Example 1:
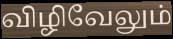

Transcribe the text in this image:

விழிவேலும்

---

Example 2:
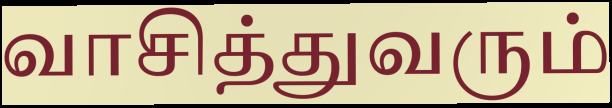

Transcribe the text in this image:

வாசித்துவரும்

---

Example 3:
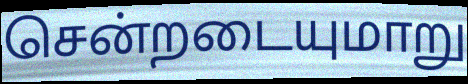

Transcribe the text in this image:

சென்றடையுமாறு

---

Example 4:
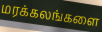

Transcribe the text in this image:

மரக்கலங்களை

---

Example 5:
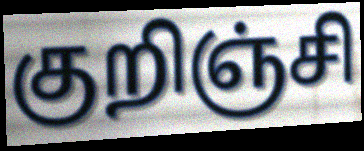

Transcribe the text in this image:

குறிஞ்சி